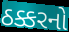
ઠક્કરનો